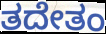
ತದೇತಂ